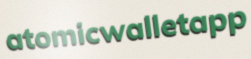
atomicwalletapp